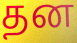
தன